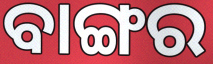
ବାଙ୍ଗର